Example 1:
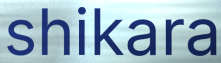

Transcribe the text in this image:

shikara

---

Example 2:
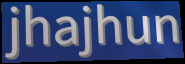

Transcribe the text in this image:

jhajhun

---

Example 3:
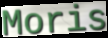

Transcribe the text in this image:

Moris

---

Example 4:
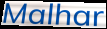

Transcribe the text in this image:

Malhar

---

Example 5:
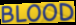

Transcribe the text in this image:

BLOOD